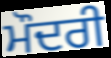
ਮੌਦਰੀ